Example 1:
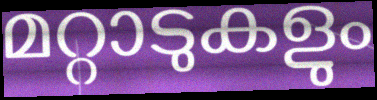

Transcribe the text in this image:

മറ്റാടുകളും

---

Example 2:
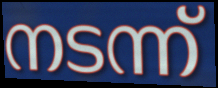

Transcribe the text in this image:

നടന്ന്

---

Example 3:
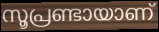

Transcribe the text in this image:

സൂപ്രണ്ടായാണ്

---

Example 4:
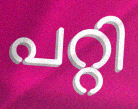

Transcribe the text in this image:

പറ്റി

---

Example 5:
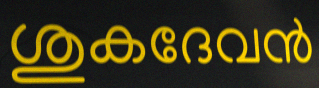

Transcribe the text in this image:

ശുകദേവൻ